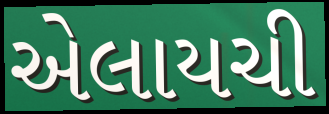
એલાયચી